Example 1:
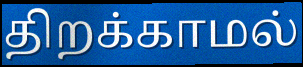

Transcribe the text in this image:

திறக்காமல்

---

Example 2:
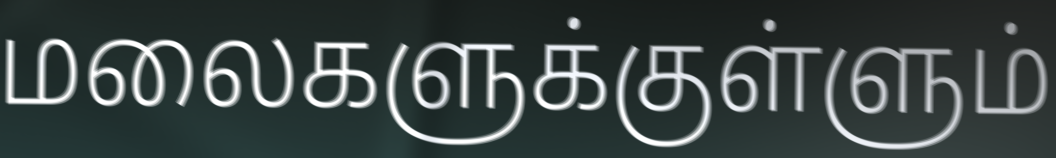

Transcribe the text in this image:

மலைகளுக்குள்ளும்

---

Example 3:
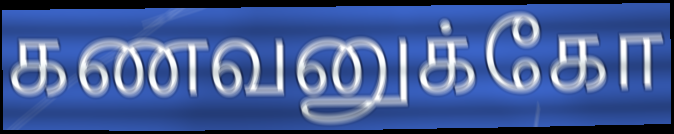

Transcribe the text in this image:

கணவனுக்கோ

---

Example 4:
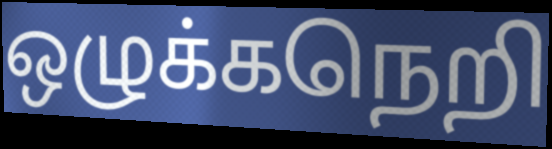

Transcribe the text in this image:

ஒழுக்கநெறி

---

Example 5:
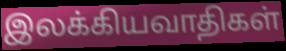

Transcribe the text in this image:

இலக்கியவாதிகள்